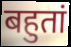
बहुतां